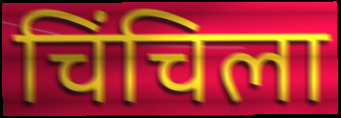
चिंचिला